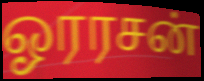
ஓரரசன்